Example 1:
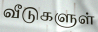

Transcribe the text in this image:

வீடுகளுள்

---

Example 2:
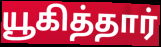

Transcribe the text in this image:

யூகித்தார்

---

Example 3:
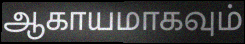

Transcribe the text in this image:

ஆகாயமாகவும்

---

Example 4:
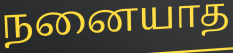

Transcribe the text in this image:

நனையாத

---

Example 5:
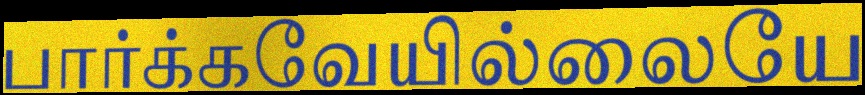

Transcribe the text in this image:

பார்க்கவேயில்லையே